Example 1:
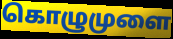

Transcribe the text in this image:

கொழுமுளை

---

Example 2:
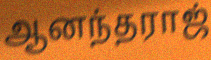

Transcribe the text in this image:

ஆனந்தராஜ்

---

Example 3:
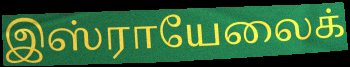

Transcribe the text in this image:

இஸ்ராயேலைக்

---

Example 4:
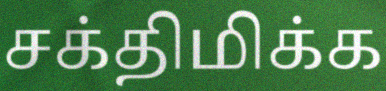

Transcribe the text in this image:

சக்திமிக்க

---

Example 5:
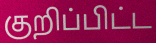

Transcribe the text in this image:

குறிப்பிட்ட